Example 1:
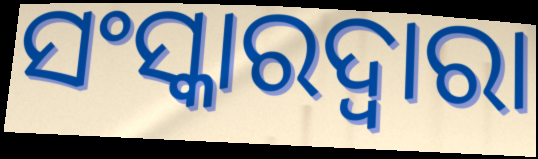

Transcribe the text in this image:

ସଂସ୍କାରଦ୍ୱାରା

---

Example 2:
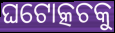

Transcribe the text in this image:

ଘଟୋତ୍କଚକୁ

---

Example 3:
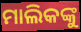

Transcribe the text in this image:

ମାଲିକଙ୍କୁ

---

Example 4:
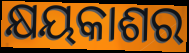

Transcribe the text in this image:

କ୍ଷୟକାଶର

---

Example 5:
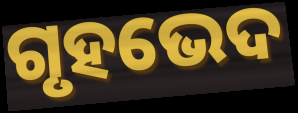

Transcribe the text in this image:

ଗୃହଭେଦ